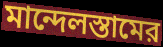
মান্দেলস্তামের